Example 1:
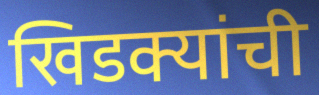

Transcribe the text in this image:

खिडक्यांची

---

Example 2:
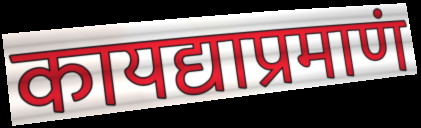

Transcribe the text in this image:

कायद्याप्रमाणं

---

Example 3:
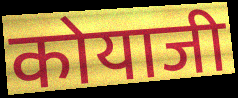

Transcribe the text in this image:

कोयाजी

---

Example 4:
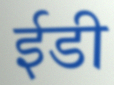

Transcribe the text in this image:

ईडी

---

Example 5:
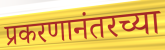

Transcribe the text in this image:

प्रकरणानंतरच्या